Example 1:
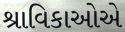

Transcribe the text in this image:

શ્રાવિકાઓએ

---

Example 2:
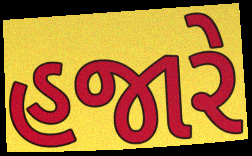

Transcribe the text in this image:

હજારે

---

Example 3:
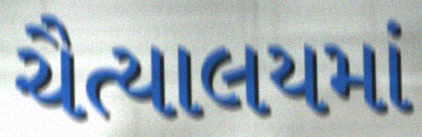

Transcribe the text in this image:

ચૈત્યાલયમાં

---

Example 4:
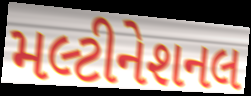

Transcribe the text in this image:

મલ્ટીનેશનલ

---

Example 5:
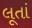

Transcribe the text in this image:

લૂતાં